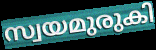
സ്വയമുരുകി